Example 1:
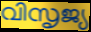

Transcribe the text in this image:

വിസൃജ്യ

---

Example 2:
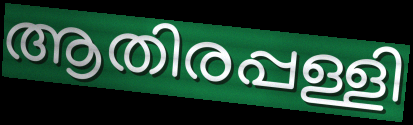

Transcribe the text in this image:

ആതിരപ്പള്ളി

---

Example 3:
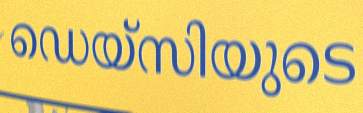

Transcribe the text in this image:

ഡെയ്സിയുടെ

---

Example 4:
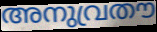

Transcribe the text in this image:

അനുവ്രതൗ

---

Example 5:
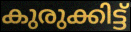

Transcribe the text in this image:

കുരുക്കിട്ട്